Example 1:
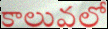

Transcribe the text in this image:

కాలువలో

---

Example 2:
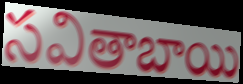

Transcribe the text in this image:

సవితాబాయి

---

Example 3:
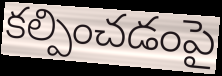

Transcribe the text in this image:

కల్పించడంపై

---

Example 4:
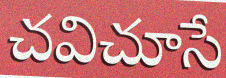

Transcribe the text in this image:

చవిచూసే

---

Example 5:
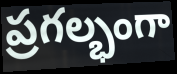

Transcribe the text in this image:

ప్రగల్భంగా